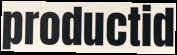
productid